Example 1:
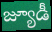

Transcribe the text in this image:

జ్యూడీ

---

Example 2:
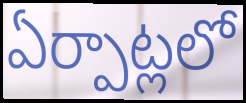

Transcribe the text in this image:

ఏర్పాట్లలో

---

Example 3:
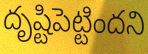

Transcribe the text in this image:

దృష్టిపెట్టిందని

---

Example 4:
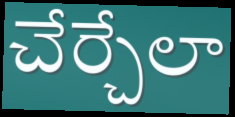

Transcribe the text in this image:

చేర్చేలా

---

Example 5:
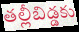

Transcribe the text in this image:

తల్లీబిడ్డకు